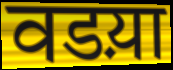
वडय़ा